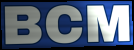
BCM